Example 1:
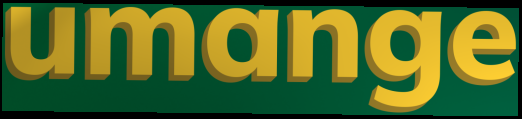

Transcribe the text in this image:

umange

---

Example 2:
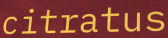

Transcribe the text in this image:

citratus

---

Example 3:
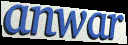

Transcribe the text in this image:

anwar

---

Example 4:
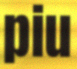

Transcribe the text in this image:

piu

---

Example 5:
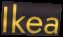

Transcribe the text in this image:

Ikea